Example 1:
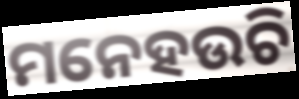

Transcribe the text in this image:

ମନେହଉଚି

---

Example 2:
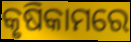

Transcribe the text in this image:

କୃଷିକାମରେ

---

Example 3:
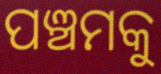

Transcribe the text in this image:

ପଞ୍ଚମକୁ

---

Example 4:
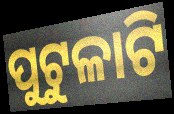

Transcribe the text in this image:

ପୁଟୁଳାଟି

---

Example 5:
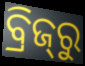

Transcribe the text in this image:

ବ୍ରିଜ୍‌ରୁ